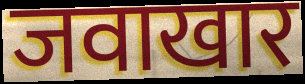
जवाखार